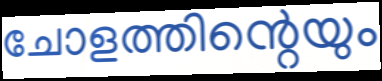
ചോളത്തിന്റെയും